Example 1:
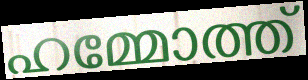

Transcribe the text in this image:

ഹമ്മോത്ത്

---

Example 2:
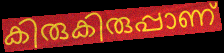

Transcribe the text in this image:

കിരുകിരുപ്പാണ്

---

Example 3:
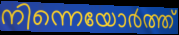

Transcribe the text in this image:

നിന്നെയോർത്ത്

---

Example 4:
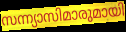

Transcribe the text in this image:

സന്ന്യാസിമാരുമായി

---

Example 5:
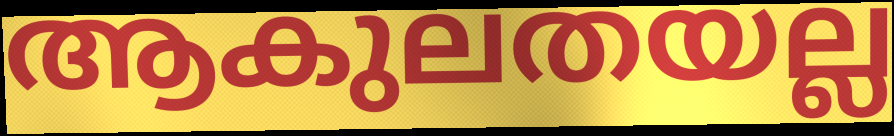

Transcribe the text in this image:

ആകുലതയല്ല